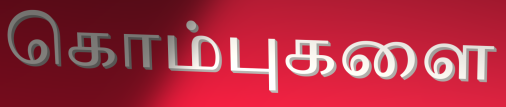
கொம்புகளை